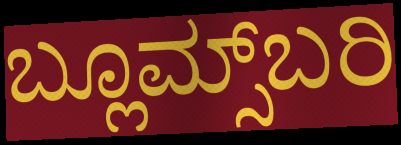
ಬ್ಲೂಮ್ಸ್‌ಬರಿ